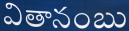
వితానంబు